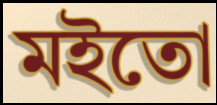
মইতো